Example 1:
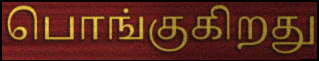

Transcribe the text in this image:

பொங்குகிறது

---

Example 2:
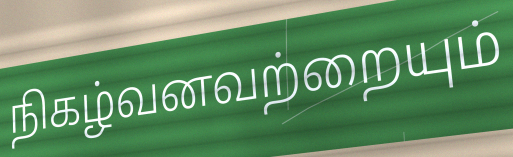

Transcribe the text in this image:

நிகழ்வனவற்றையும்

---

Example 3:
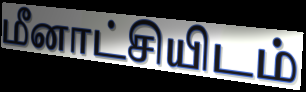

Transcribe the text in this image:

மீனாட்சியிடம்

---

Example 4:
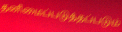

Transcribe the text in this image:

தனிமைப்படுத்தப்படும்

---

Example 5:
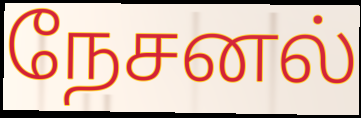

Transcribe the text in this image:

நேசனல்